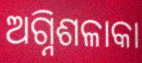
ଅଗ୍ନିଶଳାକା